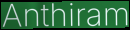
Anthiram